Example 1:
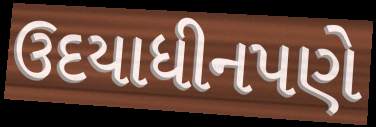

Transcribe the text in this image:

ઉદયાધીનપણે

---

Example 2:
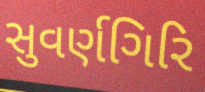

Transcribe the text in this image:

સુવર્ણગિરિ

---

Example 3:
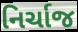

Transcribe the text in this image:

નિર્ચાજ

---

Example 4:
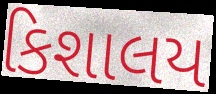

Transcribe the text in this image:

કિશાલય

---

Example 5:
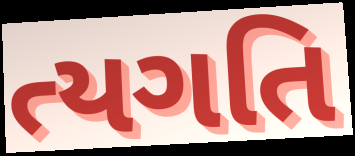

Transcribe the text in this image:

ત્યગતિ